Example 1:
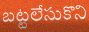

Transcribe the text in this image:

బట్టలేసుకొని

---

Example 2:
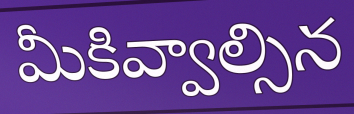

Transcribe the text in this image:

మీకివ్వాల్సిన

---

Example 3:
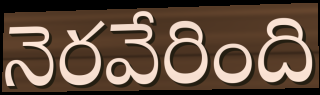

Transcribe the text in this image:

నెరవేరింది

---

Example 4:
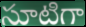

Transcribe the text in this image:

సూటిగా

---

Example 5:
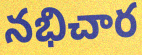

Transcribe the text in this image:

నభిచార